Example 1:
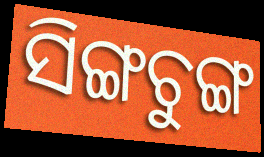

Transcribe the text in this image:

ସିଙ୍ଗଚୁଙ୍ଗ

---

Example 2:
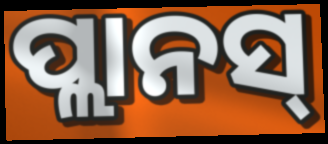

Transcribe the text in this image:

ପ୍ଲାନସ୍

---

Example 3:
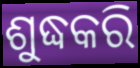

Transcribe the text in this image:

ଶୁଦ୍ଧକରି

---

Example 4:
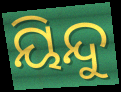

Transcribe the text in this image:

ୟିନ୍ଦୁ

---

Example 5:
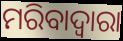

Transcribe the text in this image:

ମରିବାଦ୍ୱାରା